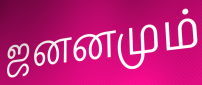
ஜனனமும்